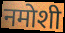
नमोशी